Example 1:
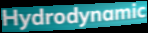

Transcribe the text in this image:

Hydrodynamic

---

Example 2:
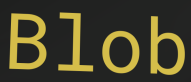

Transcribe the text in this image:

Blob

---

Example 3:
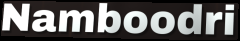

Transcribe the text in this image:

Namboodri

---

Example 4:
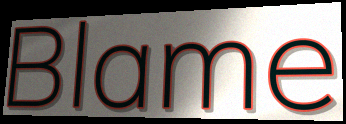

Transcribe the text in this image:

Blame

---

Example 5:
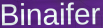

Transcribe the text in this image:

Binaifer